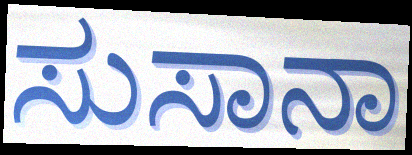
ಸುಸಾನಾ